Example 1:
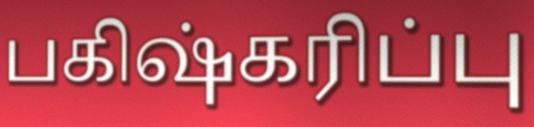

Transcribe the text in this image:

பகிஷ்கரிப்பு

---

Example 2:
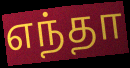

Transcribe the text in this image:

எந்தா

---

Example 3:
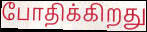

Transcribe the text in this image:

போதிக்கிறது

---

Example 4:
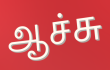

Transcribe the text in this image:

ஆச்சு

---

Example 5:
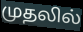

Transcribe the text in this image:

முதலில்